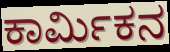
ಕಾರ್ಮಿಕನ